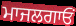
ਮਾਜਲਗਾਓਂ